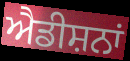
ਐਡੀਸ਼ਨਾਂ